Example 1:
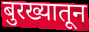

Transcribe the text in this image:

बुरख्यातून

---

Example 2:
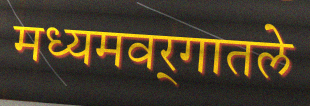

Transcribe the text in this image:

मध्यमवर्गातले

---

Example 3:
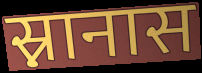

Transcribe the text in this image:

स्नानास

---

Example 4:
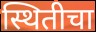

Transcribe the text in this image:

स्थितीचा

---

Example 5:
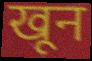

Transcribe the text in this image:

खून